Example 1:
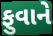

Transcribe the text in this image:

ફુવાને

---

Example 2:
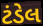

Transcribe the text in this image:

ટંડેલ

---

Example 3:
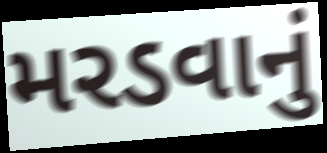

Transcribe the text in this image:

મરડવાનું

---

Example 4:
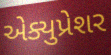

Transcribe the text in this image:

એક્યુપ્રેશર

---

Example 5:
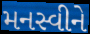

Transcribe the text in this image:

મનસ્વીને